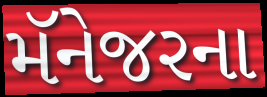
મૅનેજરના